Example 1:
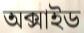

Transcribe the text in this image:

অক্সাইড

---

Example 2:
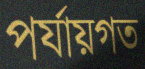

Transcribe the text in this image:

পর্যায়গত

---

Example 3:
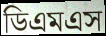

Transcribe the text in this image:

ডিএমএস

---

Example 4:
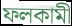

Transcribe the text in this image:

ফলকামী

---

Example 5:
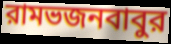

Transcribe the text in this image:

রামভজনবাবুর